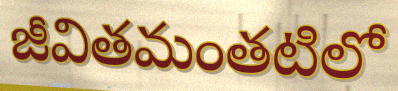
జీవితమంతటిలో